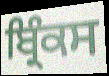
ਬ੍ਰਿੰਕਸ